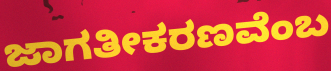
ಜಾಗತೀಕರಣವೆಂಬ